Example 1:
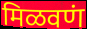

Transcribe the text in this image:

मिळवणं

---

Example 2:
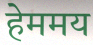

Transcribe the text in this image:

हेममय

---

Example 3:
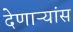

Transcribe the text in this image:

देणाऱ्यांस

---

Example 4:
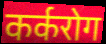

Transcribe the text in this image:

कर्करोग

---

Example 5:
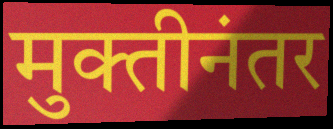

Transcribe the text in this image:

मुक्तीनंतर